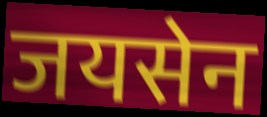
जयसेन